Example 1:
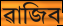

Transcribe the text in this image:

ৱাজিব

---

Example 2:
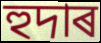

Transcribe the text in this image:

হুদাৰ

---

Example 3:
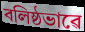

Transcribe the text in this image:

বলিষ্ঠভাৱে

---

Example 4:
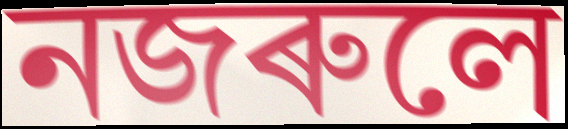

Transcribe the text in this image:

নজৰুলে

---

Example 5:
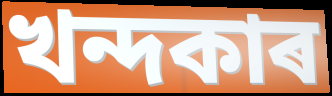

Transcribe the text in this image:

খন্দকাৰ